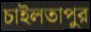
চাইলতাপুর